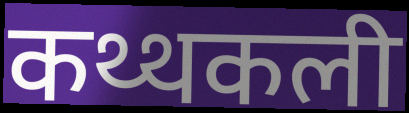
कथ्थकली